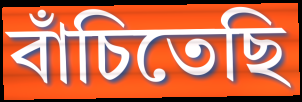
বাঁচিতেছি